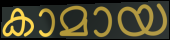
കാമായ